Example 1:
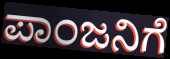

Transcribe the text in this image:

ಪಾಂಜನಿಗೆ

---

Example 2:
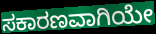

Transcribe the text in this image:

ಸಕಾರಣವಾಗಿಯೇ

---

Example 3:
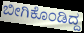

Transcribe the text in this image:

ಬೀಗಿಕೊಂಡಿದ್ದ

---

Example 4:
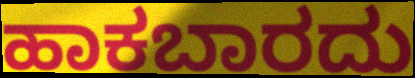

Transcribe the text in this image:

ಹಾಕಬಾರದು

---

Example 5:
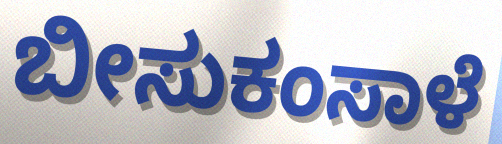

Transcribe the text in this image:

ಬೀಸುಕಂಸಾಳೆ